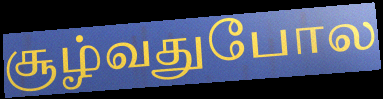
சூழ்வதுபோல